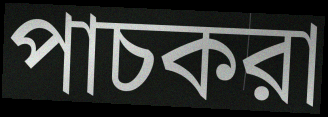
পাচকরা